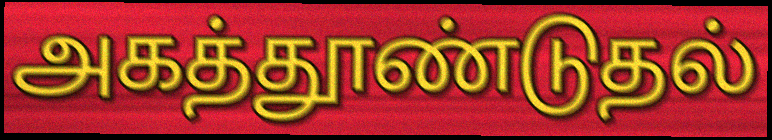
அகத்தூண்டுதல்